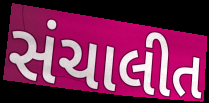
સંચાલીત